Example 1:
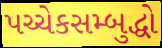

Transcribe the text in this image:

પચ્ચેકસમ્બુદ્ધો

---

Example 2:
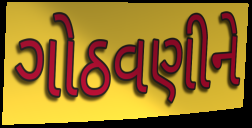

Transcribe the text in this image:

ગોઠવણીને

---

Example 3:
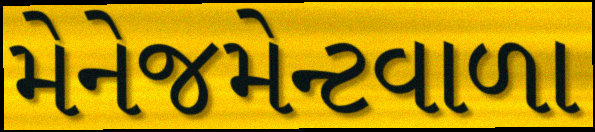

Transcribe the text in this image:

મેનેજમેન્ટવાળા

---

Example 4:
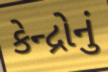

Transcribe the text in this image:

કેન્દ્રોનું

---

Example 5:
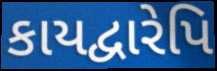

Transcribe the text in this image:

કાયદ્વારેપિ